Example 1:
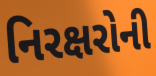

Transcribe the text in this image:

નિરક્ષરોની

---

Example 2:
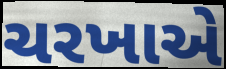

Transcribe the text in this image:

ચરખાએ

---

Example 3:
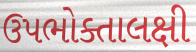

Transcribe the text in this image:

ઉપભોક્તાલક્ષી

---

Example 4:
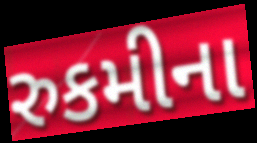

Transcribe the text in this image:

રુકમીના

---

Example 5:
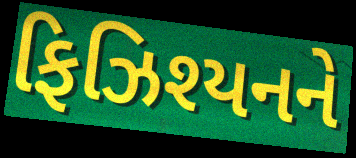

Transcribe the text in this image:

ફિઝિશ્યનને